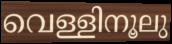
വെള്ളിനൂലു